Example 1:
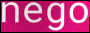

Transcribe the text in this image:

nego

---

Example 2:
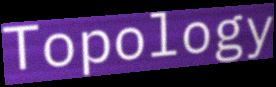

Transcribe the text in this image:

Topology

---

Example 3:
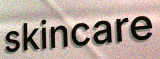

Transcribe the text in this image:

skincare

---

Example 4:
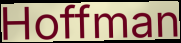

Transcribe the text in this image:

Hoffman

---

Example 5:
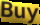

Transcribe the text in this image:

Buy